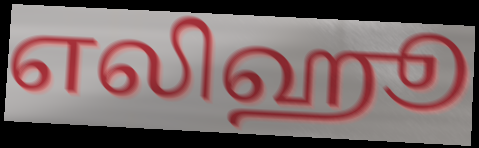
எலிஹூ